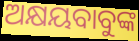
ଅକ୍ଷୟବାବୁଙ୍କ